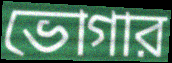
ভোগার